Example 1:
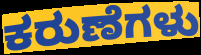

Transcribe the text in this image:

ಕರುಣೆಗಳು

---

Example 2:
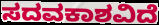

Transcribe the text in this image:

ಸದವಕಾಶವಿದೆ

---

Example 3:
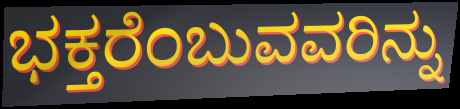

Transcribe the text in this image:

ಭಕ್ತರೆಂಬುವವರಿನ್ನು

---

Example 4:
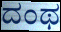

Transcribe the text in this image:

ದಂಥ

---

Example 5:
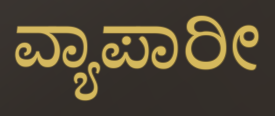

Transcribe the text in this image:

ವ್ಯಾಪಾರೀ